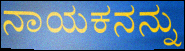
ನಾಯಕನನ್ನು